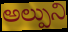
అల్పుని